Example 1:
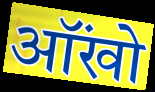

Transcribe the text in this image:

ऑंखो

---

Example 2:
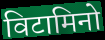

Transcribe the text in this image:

विटामिनो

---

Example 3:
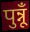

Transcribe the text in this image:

पुन्नूँ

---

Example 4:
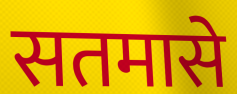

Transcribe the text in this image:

सतमासे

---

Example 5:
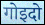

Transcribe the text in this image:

गोइदो